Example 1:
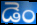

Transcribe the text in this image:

డెం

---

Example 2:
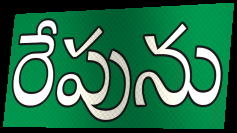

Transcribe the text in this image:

రేపును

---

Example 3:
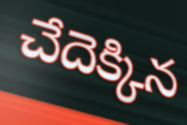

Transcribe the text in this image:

చేదెక్కిన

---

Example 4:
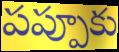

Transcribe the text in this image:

పప్పూకు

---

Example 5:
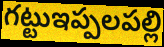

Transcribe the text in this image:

గట్టుఇప్పలపల్లి